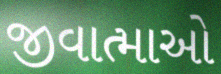
જીવાત્માઓ